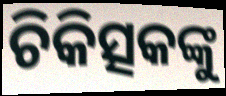
ଚିକିତ୍ସକଙ୍କୁ